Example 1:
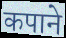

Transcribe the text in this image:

कपाने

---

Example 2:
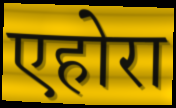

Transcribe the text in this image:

एहोरा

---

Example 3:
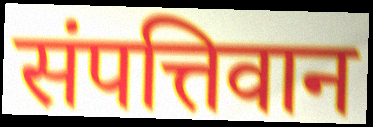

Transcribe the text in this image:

संपत्तिवान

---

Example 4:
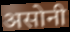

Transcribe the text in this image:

असोनी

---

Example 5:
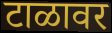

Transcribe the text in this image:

टाळावर